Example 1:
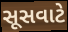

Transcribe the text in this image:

સૂસવાટે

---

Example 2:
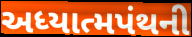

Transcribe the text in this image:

અધ્યાત્મપંથની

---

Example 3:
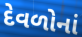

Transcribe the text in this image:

દેવળોનાં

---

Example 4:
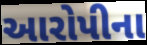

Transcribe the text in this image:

આરોપીના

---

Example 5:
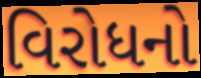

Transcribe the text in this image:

વિરોધનો